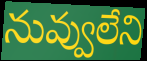
నువ్వులేని